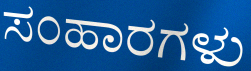
ಸಂಹಾರಗಳು